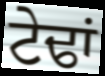
ਟੇਢਾਂ